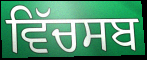
ਵਿੱਚਸਬ